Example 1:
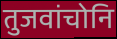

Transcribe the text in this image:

तुजवांचोनि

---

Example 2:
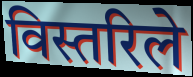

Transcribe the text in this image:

विस्तरिले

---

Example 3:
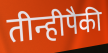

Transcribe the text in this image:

तीन्हीपैकी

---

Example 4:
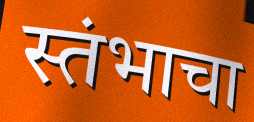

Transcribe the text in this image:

स्तंभाचा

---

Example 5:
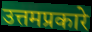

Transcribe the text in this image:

उत्तमप्रकारे